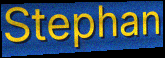
Stephan